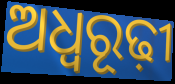
ଅଧ୍ଵରୂଢ଼ୀ